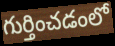
గుర్తించడంలో